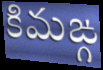
కిమఙ్గ